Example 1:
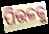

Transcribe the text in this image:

ପିତ୍ତଳକୁ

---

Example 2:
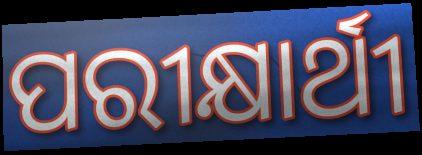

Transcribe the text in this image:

ପରୀକ୍ଷାର୍ଥୀ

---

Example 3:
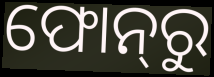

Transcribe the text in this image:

ଫୋନ୍‌ରୁ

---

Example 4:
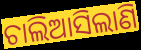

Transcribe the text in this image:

ଚାଲିଆସିଲାଣି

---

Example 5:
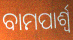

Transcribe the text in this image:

ବାମପାର୍ଶ୍ଵ